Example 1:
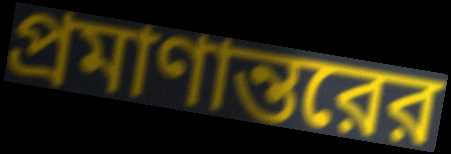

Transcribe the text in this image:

প্রমাণান্তরের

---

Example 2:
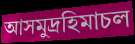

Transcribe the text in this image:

আসমুদ্রহিমাচল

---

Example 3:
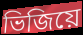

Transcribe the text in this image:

ভিজিয়ে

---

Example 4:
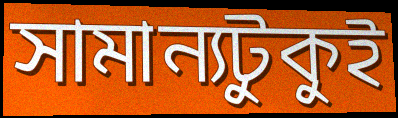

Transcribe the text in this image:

সামান্যটুকুই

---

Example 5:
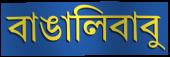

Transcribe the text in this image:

বাঙালিবাবু